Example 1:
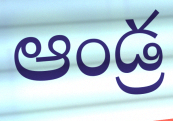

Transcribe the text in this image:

ఆండ్ర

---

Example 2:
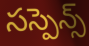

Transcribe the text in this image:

సస్పెన్స్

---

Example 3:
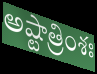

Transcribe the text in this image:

అష్టాత్రింశః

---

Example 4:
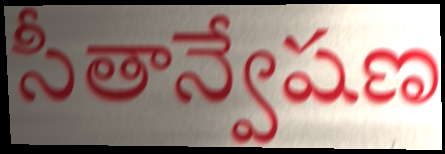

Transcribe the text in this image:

సీతాన్వేషణ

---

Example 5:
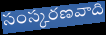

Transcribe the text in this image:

సంస్కరణవాది